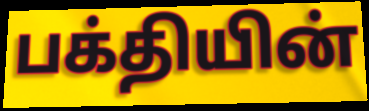
பக்தியின்